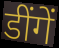
डींगें